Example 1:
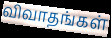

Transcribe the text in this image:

விவாதங்கள்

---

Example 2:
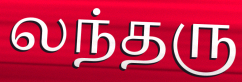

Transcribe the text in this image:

லந்தரு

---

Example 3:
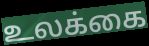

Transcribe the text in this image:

உலக்கை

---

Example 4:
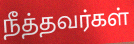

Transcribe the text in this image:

நீத்தவர்கள்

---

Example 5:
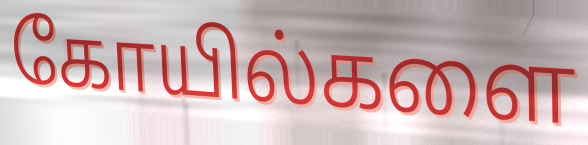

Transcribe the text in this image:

கோயில்களை